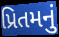
પ્રિતમનું